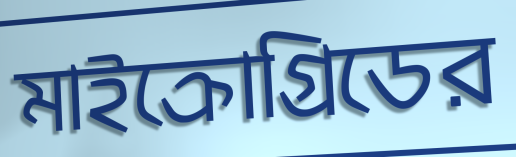
মাইক্রোগ্রিডের